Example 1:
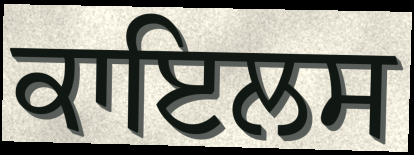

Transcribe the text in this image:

ਕਾਇਲਸ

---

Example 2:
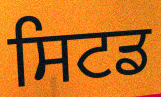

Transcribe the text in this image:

ਸਿਟਡ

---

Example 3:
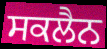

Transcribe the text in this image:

ਸਕਲੈਨ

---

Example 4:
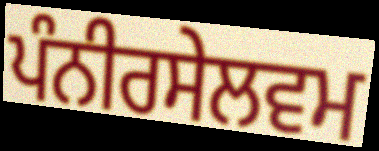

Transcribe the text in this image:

ਪੰਨੀਰਸੇਲਵਮ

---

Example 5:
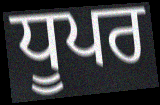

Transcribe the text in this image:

ਧੂਪਰ